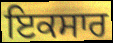
ਇਕਸਾਰ